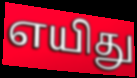
எயிது